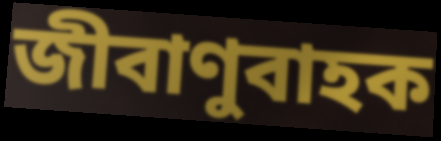
জীবাণুবাহক